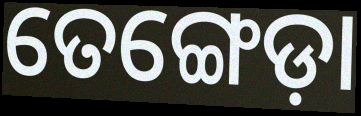
ତେଙ୍ଗେଡ଼ା